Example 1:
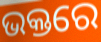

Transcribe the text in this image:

ଭକ୍ତରେ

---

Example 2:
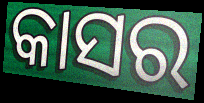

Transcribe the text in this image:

କାସର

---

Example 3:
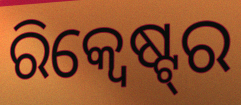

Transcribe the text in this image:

ରିକ୍ୱେଷ୍ଟ୍‌ର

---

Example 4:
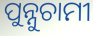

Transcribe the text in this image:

ପୁନ୍ନୁଚାମୀ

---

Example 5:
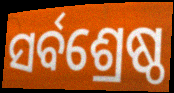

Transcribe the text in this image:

ସର୍ବଶ୍ରେଷ୍ଠ